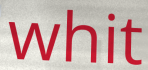
whit